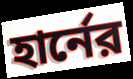
হার্নের